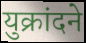
युक्रांदने